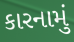
કારનામું